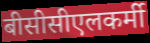
बीसीसीएलकर्मी